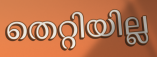
തെറ്റിയില്ല